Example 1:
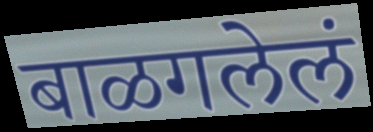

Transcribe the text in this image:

बाळगलेलं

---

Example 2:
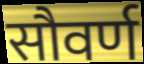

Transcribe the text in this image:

सौवर्ण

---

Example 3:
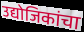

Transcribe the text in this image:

उद्योजिकांचा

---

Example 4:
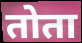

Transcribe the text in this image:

तोता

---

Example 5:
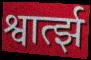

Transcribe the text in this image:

श्वार्त्झ